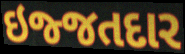
ઇજ્જતદાર